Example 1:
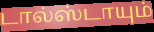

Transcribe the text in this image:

டால்ஸ்டாயும்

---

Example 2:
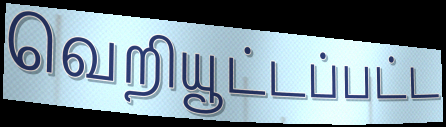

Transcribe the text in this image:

வெறியூட்டப்பட்ட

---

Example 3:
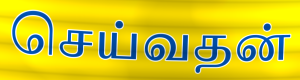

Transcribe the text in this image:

செய்வதன்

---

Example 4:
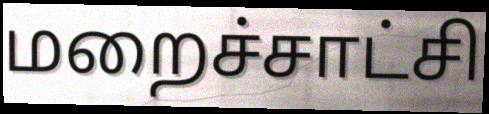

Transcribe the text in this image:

மறைச்சாட்சி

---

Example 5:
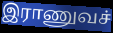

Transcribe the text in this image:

இராணுவச்